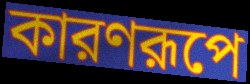
কারণরূপে